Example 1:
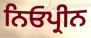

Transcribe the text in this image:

ਨਿਓਪ੍ਰੀਨ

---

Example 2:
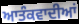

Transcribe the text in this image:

ਆਤੰਕਵਾਦੀਆਂ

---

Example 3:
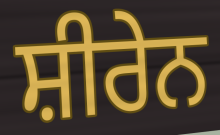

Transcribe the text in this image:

ਸ਼ੀਰੇਨ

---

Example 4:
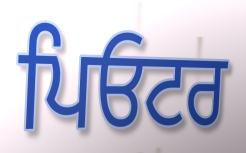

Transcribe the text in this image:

ਪਿਓਟਰ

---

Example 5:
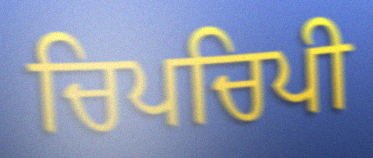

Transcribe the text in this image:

ਚਿਪਚਿਪੀ